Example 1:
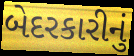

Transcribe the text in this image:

બેદરકારીનું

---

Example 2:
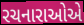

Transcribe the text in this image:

રચનારાઓએ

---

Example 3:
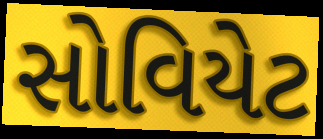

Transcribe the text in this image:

સોવિયેટ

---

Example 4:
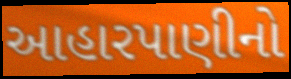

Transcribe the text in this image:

આહારપાણીનો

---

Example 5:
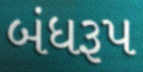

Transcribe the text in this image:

બંધરૂપ